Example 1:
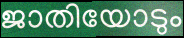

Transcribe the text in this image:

ജാതിയോടും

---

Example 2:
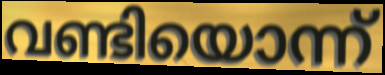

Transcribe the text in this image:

വണ്ടിയൊന്ന്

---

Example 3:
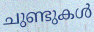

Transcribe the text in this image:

ചുണ്ടുകൾ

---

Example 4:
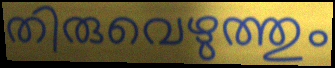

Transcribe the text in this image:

തിരുവെഴുത്തും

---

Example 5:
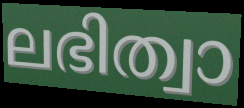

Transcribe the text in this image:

ലഭിത്വാ